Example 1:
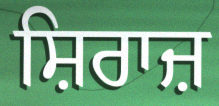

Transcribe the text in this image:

ਸ਼ਿਰਾਜ਼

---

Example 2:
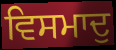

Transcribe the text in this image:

ਵਿਸਮਾਦੁ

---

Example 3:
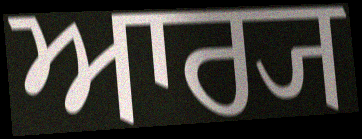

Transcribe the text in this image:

ਆਰ੍ਯ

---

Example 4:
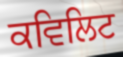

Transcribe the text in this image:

ਕਵਿਲਿਟ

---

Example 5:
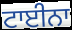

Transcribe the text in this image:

ਟਾਈਨਾ